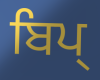
ਬਿਪ੍